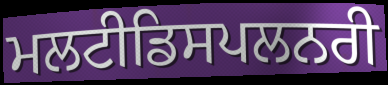
ਮਲਟੀਡਿਸਪਲਨਰੀ